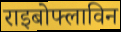
राइबोफ्लाविन